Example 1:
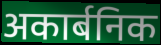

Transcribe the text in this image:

अकार्बनिक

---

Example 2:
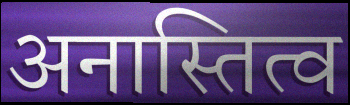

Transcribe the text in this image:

अनास्तित्व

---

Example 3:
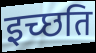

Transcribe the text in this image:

इच्छति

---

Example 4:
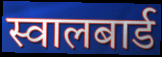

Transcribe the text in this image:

स्वालबार्ड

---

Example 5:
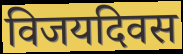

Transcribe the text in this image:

विजयदिवस